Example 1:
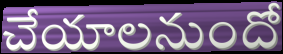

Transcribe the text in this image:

చేయాలనుందో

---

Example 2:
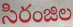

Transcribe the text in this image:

సిరంజిల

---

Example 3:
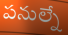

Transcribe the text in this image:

పనుల్నే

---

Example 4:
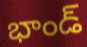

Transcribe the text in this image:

భాండ్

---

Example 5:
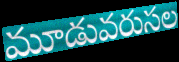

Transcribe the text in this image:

మూడువరుసల